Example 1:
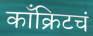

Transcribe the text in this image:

काँक्रिटचं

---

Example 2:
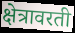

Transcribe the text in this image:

क्षेत्रावरती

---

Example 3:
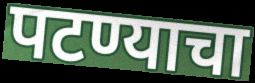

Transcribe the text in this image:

पटण्याचा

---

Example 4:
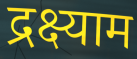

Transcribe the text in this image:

द्रक्ष्याम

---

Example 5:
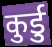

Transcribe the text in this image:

कुर्डु